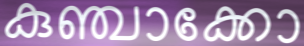
കുഞ്ചാക്കോ